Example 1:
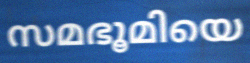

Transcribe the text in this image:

സമഭൂമിയെ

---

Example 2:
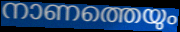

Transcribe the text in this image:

നാണത്തെയും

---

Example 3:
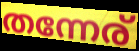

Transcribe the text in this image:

തന്നേര്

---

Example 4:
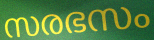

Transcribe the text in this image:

സരഭസം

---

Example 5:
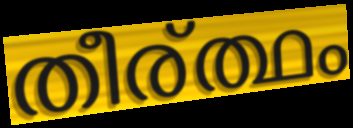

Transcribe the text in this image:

തീര്ത്ഥം